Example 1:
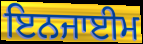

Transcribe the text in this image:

ਇਨਜਾਈਮ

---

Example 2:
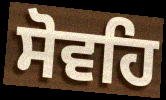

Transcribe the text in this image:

ਸੋਵਹਿ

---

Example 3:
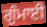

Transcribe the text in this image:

ਗੁੰਮਾਈ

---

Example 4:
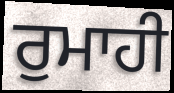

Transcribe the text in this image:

ਰੁਮਾਹੀ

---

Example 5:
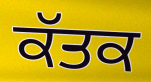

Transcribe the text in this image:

ਕੱਤਕ